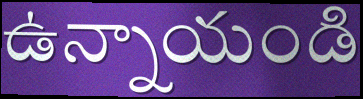
ఉన్నాయండి